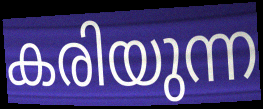
കരിയുന്ന